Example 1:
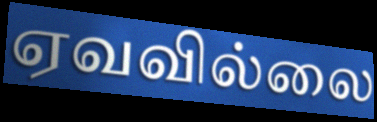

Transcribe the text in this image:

ஏவவில்லை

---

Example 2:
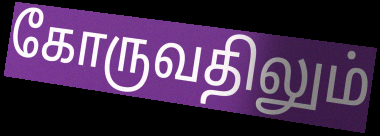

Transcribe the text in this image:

கோருவதிலும்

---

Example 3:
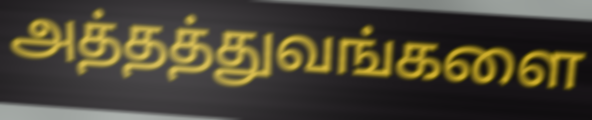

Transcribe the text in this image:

அத்தத்துவங்களை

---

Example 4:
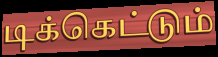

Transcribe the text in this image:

டிக்கெட்டும்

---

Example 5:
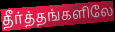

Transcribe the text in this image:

தீர்த்தங்களிலே